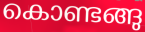
കൊണ്ടങ്ങു